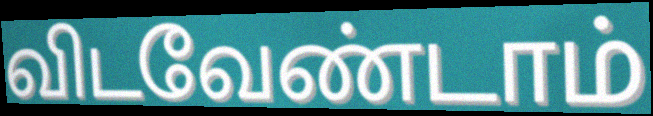
விடவேண்டாம்